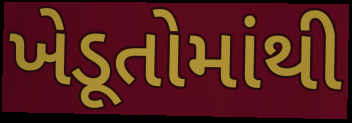
ખેડૂતોમાંથી